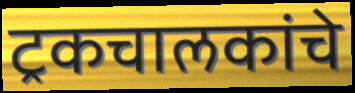
ट्रकचालकांचे